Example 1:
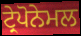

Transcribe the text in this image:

ਟ੍ਰੇਪੋਨੇਮਲ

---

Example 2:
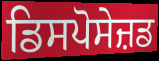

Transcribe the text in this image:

ਡਿਸਪੋਸੇਜ਼ਡ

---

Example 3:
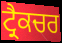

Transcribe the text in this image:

ਟ੍ਰੈਕਚਰ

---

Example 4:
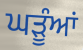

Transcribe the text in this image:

ਘੜੂੰਆਂ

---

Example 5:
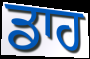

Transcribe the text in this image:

ਡਾਹ